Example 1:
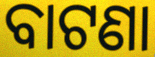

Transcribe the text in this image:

ବାଟଣା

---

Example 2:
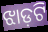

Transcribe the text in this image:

ଝାଡ଼ଟି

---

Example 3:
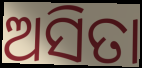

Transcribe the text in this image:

ଅସିତା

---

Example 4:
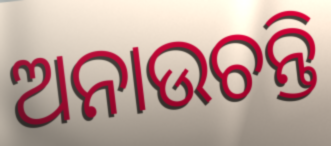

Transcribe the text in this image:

ଅନାଉଚନ୍ତି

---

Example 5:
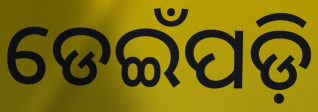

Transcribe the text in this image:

ଡେଇଁପଡ଼ି